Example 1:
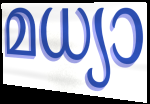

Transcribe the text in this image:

മധ്യാ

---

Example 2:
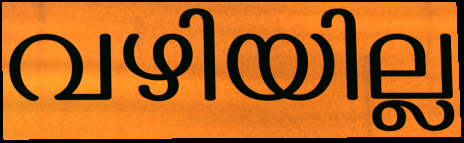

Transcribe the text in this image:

വഴിയില്ല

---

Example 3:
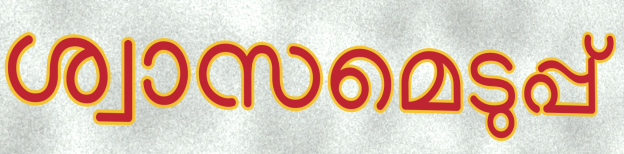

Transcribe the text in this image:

ശ്വാസമെടുപ്പ്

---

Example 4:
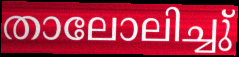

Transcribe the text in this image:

താലോലിച്ചു്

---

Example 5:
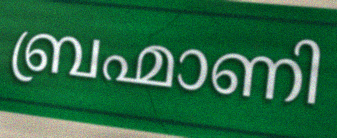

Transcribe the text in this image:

ബ്രഹ്മാണി